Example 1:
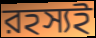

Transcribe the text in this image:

রহস্যই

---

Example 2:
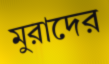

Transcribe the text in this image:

মুরাদের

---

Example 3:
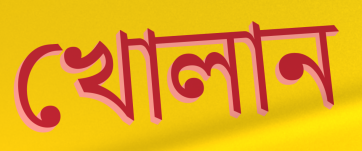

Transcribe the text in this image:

খোলান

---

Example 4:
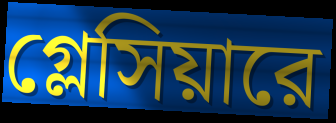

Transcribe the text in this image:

গ্লেসিয়ারে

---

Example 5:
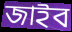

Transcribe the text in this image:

জাইব